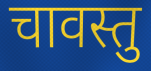
चावस्तु